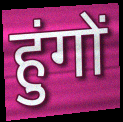
हुंगों